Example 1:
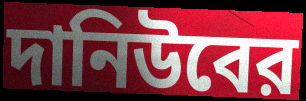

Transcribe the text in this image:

দানিউবের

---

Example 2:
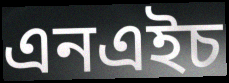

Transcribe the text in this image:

এনএইচ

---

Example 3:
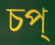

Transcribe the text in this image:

চপ্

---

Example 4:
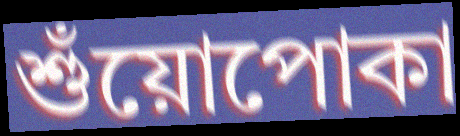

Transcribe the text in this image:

শুঁয়োপোকা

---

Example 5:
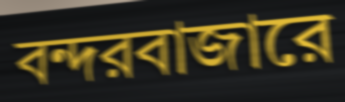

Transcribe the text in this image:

বন্দরবাজারে